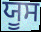
ਯੂਸ